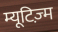
म्यूटिज़्म